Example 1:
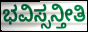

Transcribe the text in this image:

ಭವಿಸ್ಸನ್ತೀತಿ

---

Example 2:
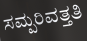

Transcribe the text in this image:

ಸಮ್ಪರಿವತ್ತತಿ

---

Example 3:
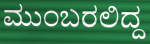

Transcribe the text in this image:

ಮುಂಬರಲಿದ್ದ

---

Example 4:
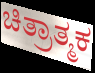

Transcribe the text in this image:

ಚಿತ್ರಾತ್ಮಕ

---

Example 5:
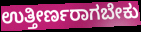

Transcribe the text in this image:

ಉತ್ತೀರ್ಣರಾಗಬೇಕು